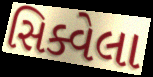
સિક્વેલા